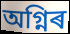
অগ্নিৰ